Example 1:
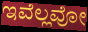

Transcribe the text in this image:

ಇವೆಲ್ಲವೋ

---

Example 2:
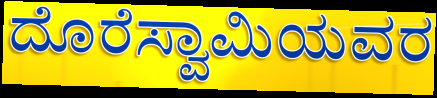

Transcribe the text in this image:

ದೊರೆಸ್ವಾಮಿಯವರ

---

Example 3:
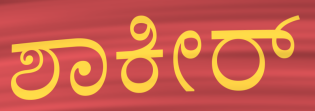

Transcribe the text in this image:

ಶಾಕೀರ್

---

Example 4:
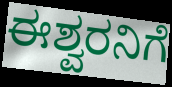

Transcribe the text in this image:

ಈಶ್ವರನಿಗೆ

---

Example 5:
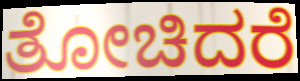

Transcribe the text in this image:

ತೋಚಿದರೆ